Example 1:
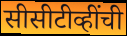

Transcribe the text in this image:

सीसीटीव्हींची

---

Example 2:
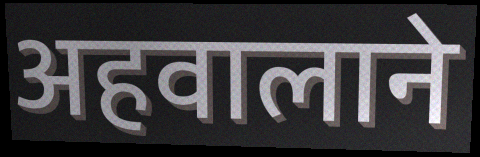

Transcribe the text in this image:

अहवालाने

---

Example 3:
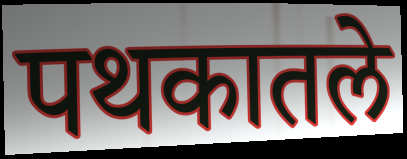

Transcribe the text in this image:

पथकातले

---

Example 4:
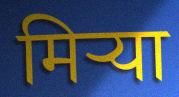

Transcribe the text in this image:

मिऱ्या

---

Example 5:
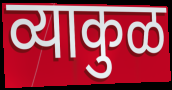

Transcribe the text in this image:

व्याकुळ